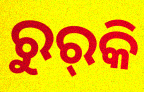
ରୁର୍‍କି